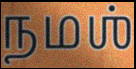
நமஶ்